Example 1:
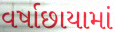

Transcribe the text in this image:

વર્ષાછાયામાં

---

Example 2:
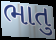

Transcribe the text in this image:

ભાતુ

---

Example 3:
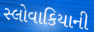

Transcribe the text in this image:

સ્લોવાકિયાની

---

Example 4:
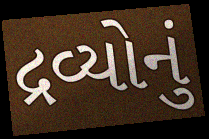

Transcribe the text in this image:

દ્રવ્યોનું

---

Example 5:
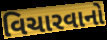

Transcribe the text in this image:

વિચારવાનો